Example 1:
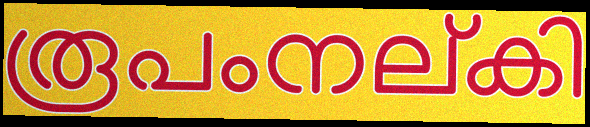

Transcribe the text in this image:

രൂപംനല്കി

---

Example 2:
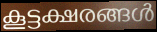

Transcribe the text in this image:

കൂട്ടക്ഷരങ്ങൾ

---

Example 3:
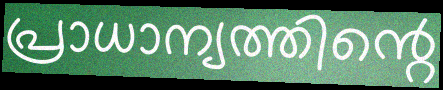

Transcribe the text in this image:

പ്രാധാന്യത്തിന്റെ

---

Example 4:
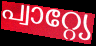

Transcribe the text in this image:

പ്വാറ്റ്യേ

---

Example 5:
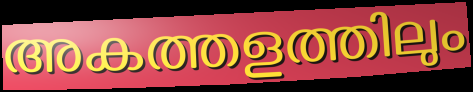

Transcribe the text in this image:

അകത്തളത്തിലും